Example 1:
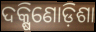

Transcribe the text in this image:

ଦକ୍ଷିଣୋଡ଼ିଶା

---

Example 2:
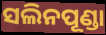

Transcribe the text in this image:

ସଲିନପୂଣ୍ଡା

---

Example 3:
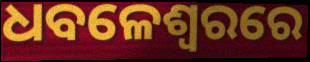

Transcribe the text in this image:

ଧବଳେଶ୍ଵରରେ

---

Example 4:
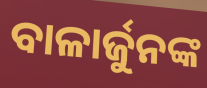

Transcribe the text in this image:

ବାଳାର୍ଜୁନଙ୍କ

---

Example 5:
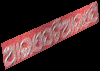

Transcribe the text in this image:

ଆଇଏସଟିଆରଏସି